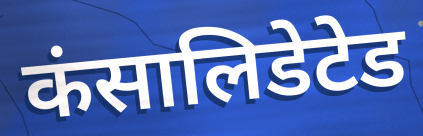
कंसालिडेटेड